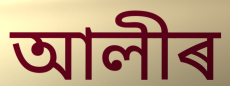
আলীৰ